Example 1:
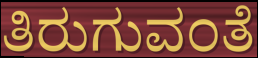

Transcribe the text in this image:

ತಿರುಗುವಂತೆ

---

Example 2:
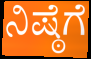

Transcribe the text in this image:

ನಿಷ್ಠೆಗೆ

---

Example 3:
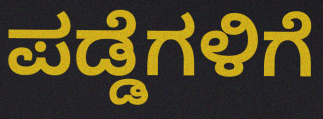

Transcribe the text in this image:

ಪಡ್ಡೆಗಳಿಗೆ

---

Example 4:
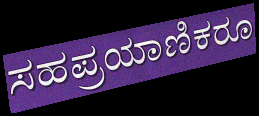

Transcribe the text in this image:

ಸಹಪ್ರಯಾಣಿಕರೂ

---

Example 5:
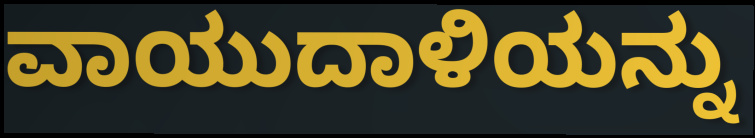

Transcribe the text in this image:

ವಾಯುದಾಳಿಯನ್ನು